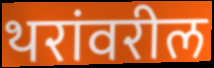
थरांवरील